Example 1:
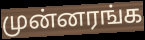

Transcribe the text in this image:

முன்னரங்க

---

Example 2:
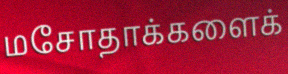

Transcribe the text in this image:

மசோதாக்களைக்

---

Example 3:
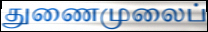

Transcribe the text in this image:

துணைமுலைப்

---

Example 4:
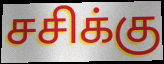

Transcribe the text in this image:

சசிக்கு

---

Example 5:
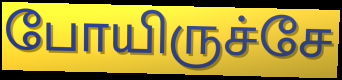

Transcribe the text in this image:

போயிருச்சே